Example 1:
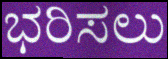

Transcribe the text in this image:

ಭರಿಸಲು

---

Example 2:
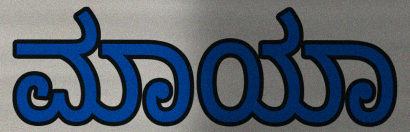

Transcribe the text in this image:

ಮಾಯಾ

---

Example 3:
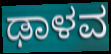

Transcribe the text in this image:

ಢಾಳವ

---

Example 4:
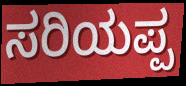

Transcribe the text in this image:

ಸರಿಯಪ್ಪ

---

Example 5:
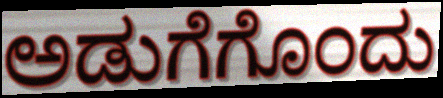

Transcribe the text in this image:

ಅಡುಗೆಗೊಂದು